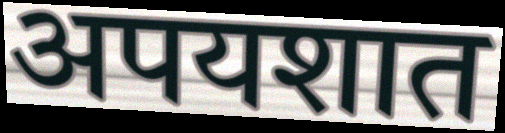
अपयशात